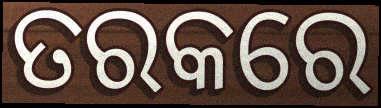
ତରକରେ